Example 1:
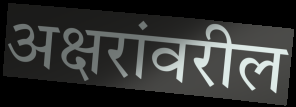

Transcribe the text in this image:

अक्षरांवरील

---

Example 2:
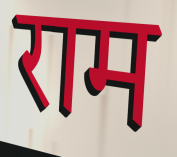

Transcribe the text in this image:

राम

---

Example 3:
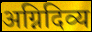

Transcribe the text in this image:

अग्निदिव्य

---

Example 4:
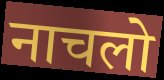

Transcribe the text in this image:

नाचलो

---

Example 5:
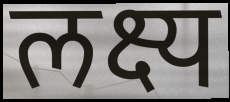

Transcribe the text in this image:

लक्ष्य